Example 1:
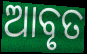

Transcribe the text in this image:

ଆବୃତ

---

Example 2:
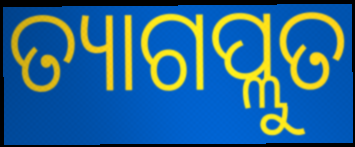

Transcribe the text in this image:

ତ୍ୟାଗପ୍ଲୁତ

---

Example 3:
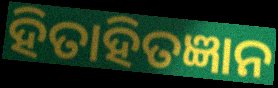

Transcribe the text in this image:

ହିତାହିତଜ୍ଞାନ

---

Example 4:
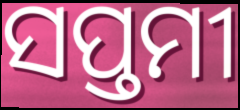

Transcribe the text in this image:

ସପ୍ତମୀ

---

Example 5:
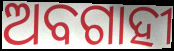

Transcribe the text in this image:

ଅବଗାହୀ